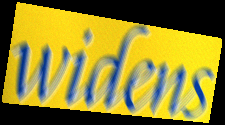
widens